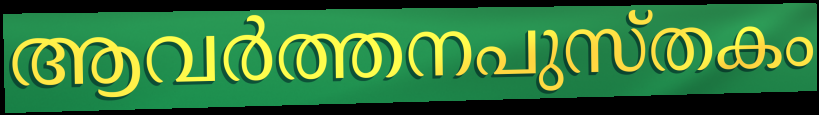
ആവർത്തനപുസ്തകം